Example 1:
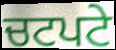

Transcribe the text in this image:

ਚਟਪਟੇ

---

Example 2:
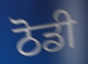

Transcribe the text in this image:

ਠੋਡੀ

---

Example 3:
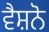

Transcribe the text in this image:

ਵੈਸ਼ਨੋ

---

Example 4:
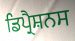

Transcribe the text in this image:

ਡਿਪ੍ਰੈਸ਼ਨਸ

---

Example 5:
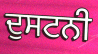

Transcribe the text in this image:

ਦੁਸਟਨੀ